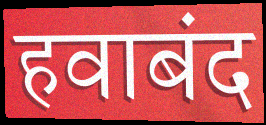
हवाबंद